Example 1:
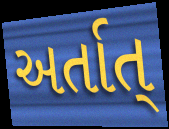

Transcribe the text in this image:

અર્તાત્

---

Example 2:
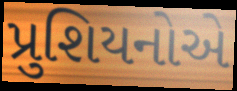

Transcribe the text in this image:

પ્રુશિયનોએ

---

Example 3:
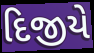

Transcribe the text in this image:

દિજીયે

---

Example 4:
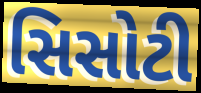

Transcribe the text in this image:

સિસોટી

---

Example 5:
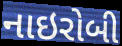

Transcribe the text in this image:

નાઇરોબી